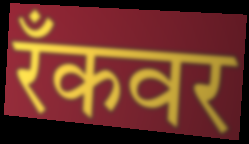
रँकवर